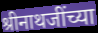
श्रीनाथजींच्या